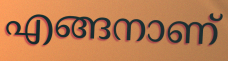
എങ്ങനാണ്